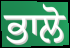
ਭਾਲੋ